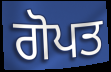
ਗੋਪਤ